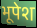
भूपेश